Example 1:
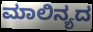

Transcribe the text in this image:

ಮಾಲಿನ್ಯದ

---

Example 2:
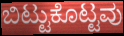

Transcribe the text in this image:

ಬಿಟ್ಟುಕೊಟ್ಟವು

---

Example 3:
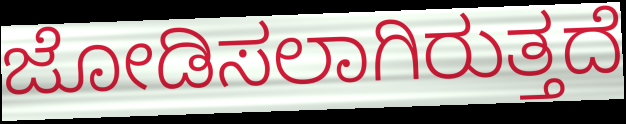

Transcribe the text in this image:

ಜೋಡಿಸಲಾಗಿರುತ್ತದೆ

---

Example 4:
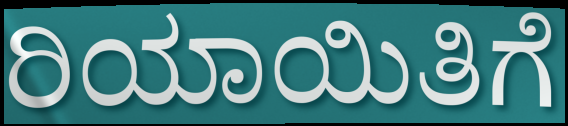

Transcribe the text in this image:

ರಿಯಾಯಿತಿಗೆ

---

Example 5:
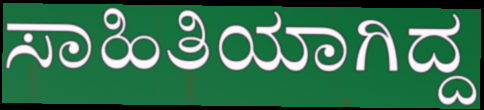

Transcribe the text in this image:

ಸಾಹಿತಿಯಾಗಿದ್ದ